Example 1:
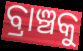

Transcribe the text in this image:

ବ୍ରାଞ୍ଚକୁ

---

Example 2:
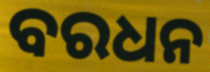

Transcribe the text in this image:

ବରଧନ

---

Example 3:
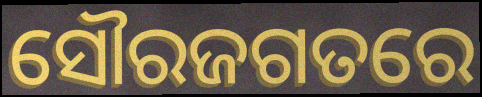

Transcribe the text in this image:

ସୌରଜଗତରେ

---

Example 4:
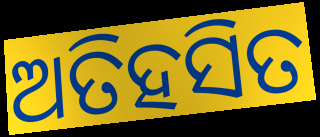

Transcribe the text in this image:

ଅତିହସିତ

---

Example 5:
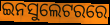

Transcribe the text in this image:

ଇନସୁଲେଟରରେ